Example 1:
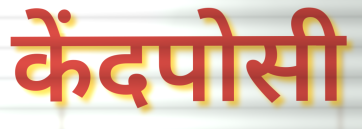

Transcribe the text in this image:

केंदपोसी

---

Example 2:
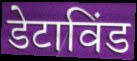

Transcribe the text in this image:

डेटाविंड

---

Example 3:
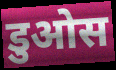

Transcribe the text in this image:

डुओस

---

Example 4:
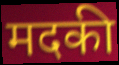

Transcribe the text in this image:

मदकी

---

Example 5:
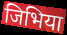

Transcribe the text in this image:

जिभिया